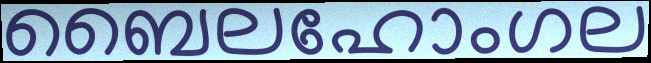
ബൈലഹോംഗല